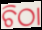
ଚିଠା